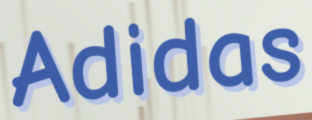
Adidas